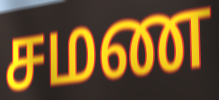
சமண